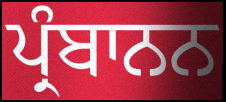
ਪ੍ਰੰਬਾਨਨ